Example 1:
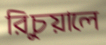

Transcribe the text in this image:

রিচুয়ালে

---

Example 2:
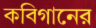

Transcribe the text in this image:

কবিগানের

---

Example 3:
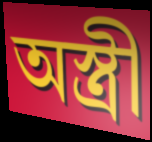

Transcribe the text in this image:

অস্ত্রী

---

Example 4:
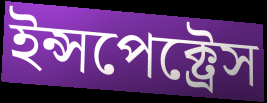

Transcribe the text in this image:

ইন্সপেক্ট্রেস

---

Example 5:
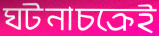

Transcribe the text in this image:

ঘটনাচক্রেই